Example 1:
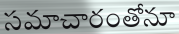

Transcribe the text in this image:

సమాచారంతోనూ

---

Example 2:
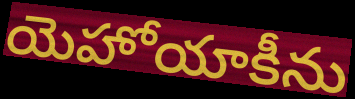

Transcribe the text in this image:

యెహోయాకీను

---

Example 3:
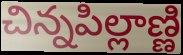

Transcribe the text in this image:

చిన్నపిల్లాణ్ణి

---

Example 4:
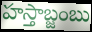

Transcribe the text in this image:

హస్తాబ్జంబు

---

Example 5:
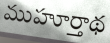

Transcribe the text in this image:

ముహూర్తాథ